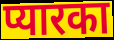
प्यारका